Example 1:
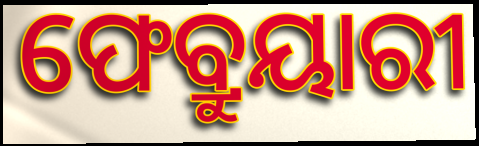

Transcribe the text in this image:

ଫେବ୍ରୁୟାରୀ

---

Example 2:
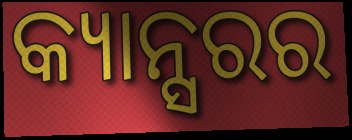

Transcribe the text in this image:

କ୍ୟାନ୍ସରର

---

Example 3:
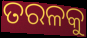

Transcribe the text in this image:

ତରଳକୁ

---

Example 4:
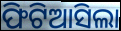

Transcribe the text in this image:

ଫିଟିଆସିଲା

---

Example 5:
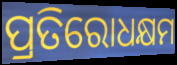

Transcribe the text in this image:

ପ୍ରତିରୋଧକ୍ଷମ